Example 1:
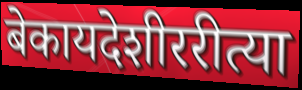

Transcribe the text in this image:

बेकायदेशीररीत्या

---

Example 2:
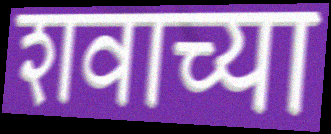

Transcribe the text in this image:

शवाच्या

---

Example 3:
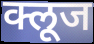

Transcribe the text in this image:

क्लूज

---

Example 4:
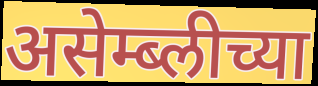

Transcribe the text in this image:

असेम्ब्लीच्या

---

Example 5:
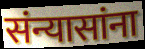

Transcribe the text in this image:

संन्यासांना